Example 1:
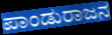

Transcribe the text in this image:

ಪಾಂಡುರಾಜನ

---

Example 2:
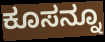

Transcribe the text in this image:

ಕೂಸನ್ನೂ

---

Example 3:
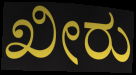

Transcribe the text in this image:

ಖೀರು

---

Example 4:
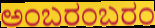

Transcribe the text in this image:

ಅಂಬರಂಬರಂ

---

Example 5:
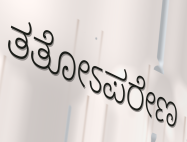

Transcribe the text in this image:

ತತೋಽಪರೇಣ